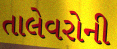
તાલેવરોની